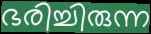
ഭരിച്ചിരുന്ന